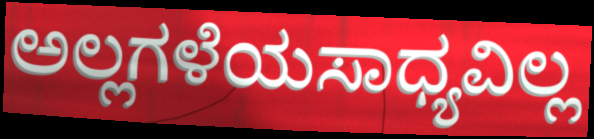
ಅಲ್ಲಗಳೆಯಸಾಧ್ಯವಿಲ್ಲ